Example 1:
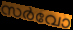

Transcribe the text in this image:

സർവോ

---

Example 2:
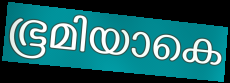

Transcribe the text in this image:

ഭൂമിയാകെ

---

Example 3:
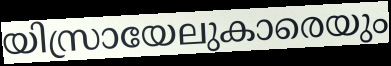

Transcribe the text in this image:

യിസ്രായേലുകാരെയും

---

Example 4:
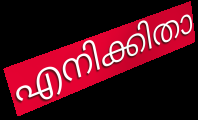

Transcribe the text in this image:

എനിക്കിതാ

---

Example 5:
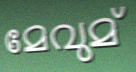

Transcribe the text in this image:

മേവുമ്